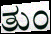
ತುಂ